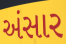
અંસાર